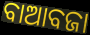
ବାଆବଜା